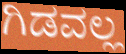
ಗಿಡವಲ್ಲ